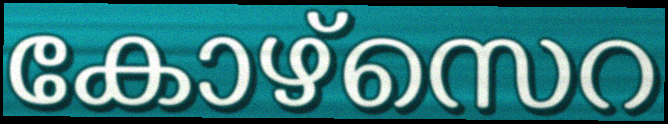
കോഴ്സെറ